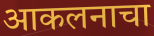
आकलनाचा